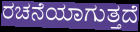
ರಚನೆಯಾಗುತ್ತದೆ